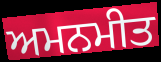
ਅਮਨਮੀਤ